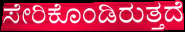
ಸೇರಿಕೊಂಡಿರುತ್ತದೆ